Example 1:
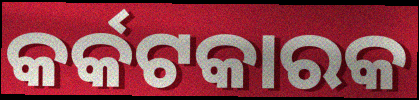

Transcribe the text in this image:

କର୍କଟକାରକ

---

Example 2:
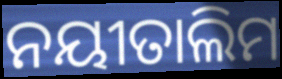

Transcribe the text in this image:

ନୟୀତାଲିମ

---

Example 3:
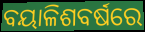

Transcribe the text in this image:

ବୟାଳିଶବର୍ଷରେ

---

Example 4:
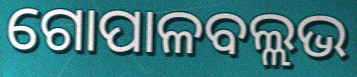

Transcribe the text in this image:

ଗୋପାଳବଲ୍ଲଭ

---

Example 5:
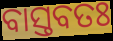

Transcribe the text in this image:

ବାସ୍ତବତଃ